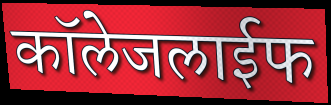
कॉलेजलाईफ